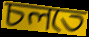
চলতে